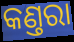
କଣ୍ତରା